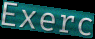
Exerc